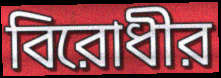
বিরোধীর